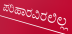
ಪರಿಹಾರವಿರಲಿಲ್ಲ